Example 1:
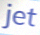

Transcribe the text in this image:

jet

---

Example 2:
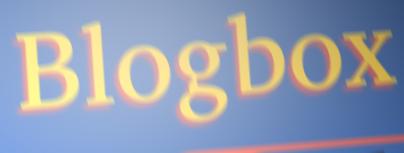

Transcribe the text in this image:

Blogbox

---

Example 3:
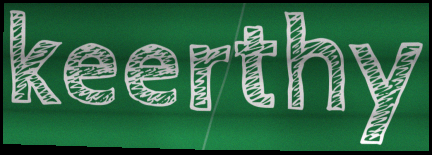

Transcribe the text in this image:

keerthy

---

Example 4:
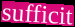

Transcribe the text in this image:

sufficit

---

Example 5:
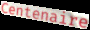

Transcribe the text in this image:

Centenaire